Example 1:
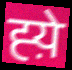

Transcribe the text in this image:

ह्य़े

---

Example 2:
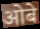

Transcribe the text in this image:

ओबे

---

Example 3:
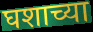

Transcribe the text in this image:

घशाच्या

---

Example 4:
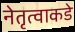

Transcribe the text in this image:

नेतृत्वाकडे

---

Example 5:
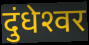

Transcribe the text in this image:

दुंधेश्वर